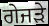
ਗੇਜੜੇ